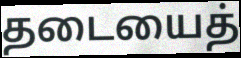
தடையைத்